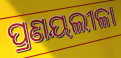
ପ୍ରଣୟଲୀଳା